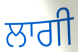
ਲਾਗੀ